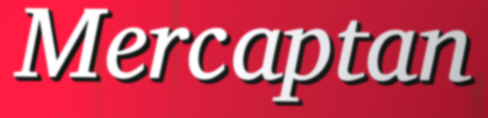
Mercaptan